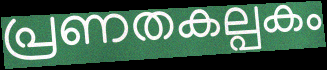
പ്രണതകല്പകം